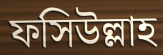
ফসিউল্লাহ